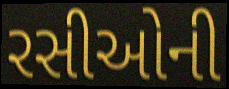
રસીઓની